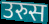
उरुस